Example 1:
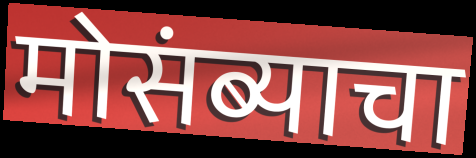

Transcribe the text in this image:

मोसंब्याचा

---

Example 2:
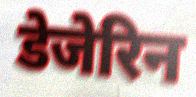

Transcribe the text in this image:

डेजेरिन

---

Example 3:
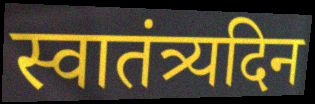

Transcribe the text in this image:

स्वातंत्र्यदिन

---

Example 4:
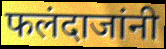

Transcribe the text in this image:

फलंदाजांनी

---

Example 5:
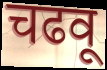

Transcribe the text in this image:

चढवू